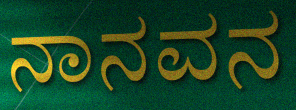
ನಾನವನ